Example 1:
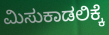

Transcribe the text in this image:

ಮಿಸುಕಾಡಲಿಕ್ಕೆ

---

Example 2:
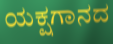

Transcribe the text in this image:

ಯಕ್ಷಗಾನದ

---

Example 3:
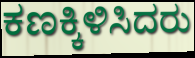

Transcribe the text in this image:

ಕಣಕ್ಕಿಳಿಸಿದರು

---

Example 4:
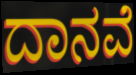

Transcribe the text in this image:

ದಾನವೆ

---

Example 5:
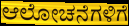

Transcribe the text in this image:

ಆಲೋಚನೆಗಳಿಗೆ